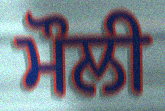
ਮੌਲੀ